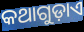
କଥାଗୁଡ଼ାଏ